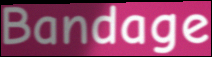
Bandage